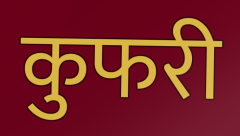
कुफरी